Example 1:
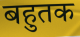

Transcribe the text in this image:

बहुतक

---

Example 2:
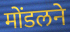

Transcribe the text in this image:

मोंडलने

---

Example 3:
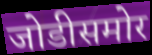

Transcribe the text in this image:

जोडीसमोर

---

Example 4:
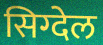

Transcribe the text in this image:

सिग्देल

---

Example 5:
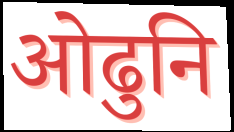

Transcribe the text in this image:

ओढुनि